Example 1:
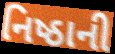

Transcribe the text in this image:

નિષ્ઠાની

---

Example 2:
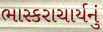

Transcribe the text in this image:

ભાસ્કરાચાર્યનું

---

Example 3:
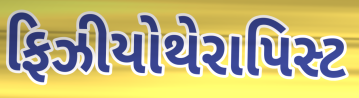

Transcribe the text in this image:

ફિઝીયોથેરાપિસ્ટ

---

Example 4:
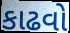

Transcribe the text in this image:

કાઢવો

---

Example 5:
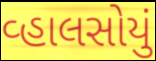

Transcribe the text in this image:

વ્હાલસોયું